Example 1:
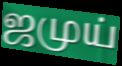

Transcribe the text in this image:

ஜமுய்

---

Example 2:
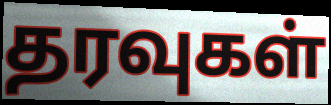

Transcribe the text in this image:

தரவுகள்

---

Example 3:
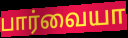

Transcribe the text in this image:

பார்வையா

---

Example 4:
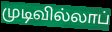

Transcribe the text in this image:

முடிவில்லாப்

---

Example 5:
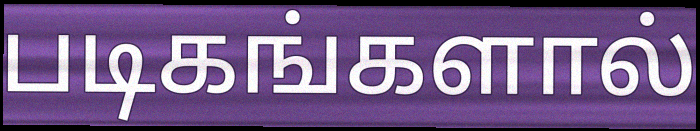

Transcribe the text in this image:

படிகங்களால்